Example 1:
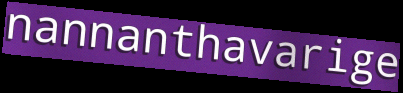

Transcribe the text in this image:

nannanthavarige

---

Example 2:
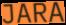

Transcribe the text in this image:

JARA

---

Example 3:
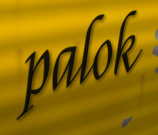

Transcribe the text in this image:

palok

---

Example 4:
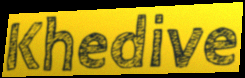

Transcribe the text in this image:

Khedive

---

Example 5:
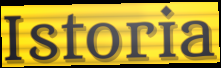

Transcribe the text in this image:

Istoria